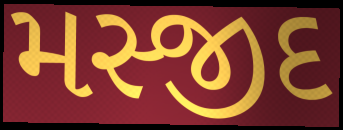
મસ્જીદ